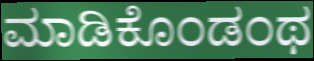
ಮಾಡಿಕೊಂಡಂಥ